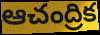
ఆచంద్రిక